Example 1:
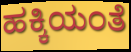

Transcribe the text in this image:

ಹಕ್ಕಿಯಂತೆ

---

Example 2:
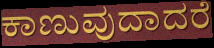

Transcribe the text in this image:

ಕಾಣುವುದಾದರೆ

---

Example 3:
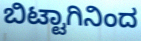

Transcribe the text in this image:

ಬಿಟ್ಟಾಗಿನಿಂದ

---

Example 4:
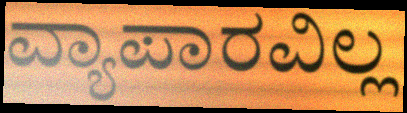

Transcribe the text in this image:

ವ್ಯಾಪಾರವಿಲ್ಲ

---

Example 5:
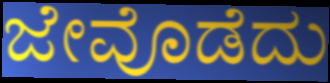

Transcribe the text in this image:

ಜೇವೊಡೆದು